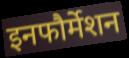
इनफौर्मेशन